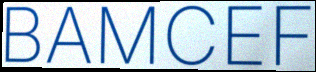
BAMCEF